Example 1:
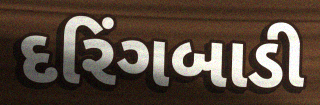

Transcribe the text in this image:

દરિંગબાડી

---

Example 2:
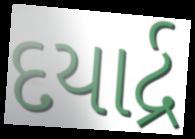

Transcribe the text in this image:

દયાર્દ્ર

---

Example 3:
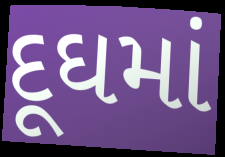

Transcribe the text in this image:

દૂઘમાં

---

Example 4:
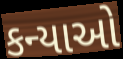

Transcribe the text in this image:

કન્યાઓ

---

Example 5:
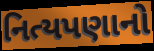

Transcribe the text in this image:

નિત્યપણાનો